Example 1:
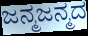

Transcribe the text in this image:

ಜನ್ಮಜನ್ಮದ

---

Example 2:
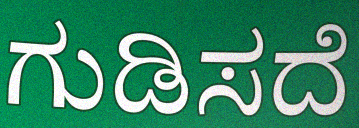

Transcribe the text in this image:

ಗುಡಿಸದೆ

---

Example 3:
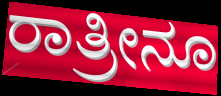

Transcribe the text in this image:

ರಾತ್ರೀನೂ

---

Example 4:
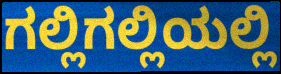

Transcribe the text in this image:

ಗಲ್ಲಿಗಲ್ಲಿಯಲ್ಲಿ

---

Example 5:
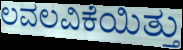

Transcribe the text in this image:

ಲವಲವಿಕೆಯಿತ್ತು